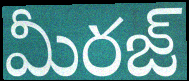
మీరజ్